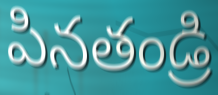
పినతండ్రి